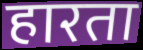
हारता